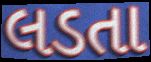
લડતા